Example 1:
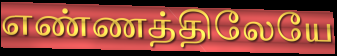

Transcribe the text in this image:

எண்ணத்திலேயே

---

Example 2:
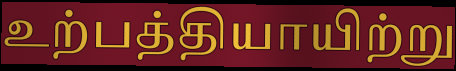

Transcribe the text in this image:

உற்பத்தியாயிற்று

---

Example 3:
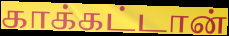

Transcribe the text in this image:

காக்கட்டான்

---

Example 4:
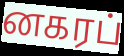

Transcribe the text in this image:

னகரப்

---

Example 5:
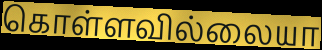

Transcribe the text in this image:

கொள்ளவில்லையா